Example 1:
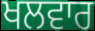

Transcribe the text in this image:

ਖਲਵਾਰ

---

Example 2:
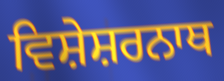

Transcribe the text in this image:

ਵਿਸ਼ੇਸ਼ਰਨਾਥ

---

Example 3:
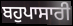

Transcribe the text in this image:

ਬਹੁਪਾਸਾਰੀ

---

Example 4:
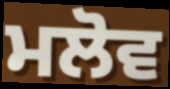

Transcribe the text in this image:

ਮਲੋਵ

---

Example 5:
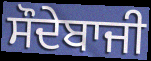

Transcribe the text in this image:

ਸੌਦੇਬਾਜੀ